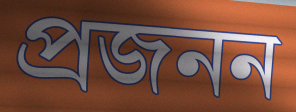
প্রজনন